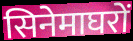
सिनेमाघरों